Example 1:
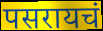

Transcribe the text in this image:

पसरायचं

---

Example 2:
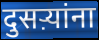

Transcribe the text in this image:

दुसऱ्‍यांना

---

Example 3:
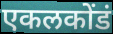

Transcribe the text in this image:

एकलकोंडं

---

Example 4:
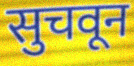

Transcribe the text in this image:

सुचवून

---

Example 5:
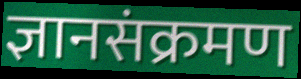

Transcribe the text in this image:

ज्ञानसंक्रमण